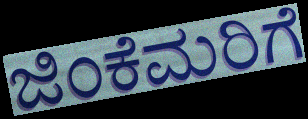
ಜಿಂಕೆಮರಿಗೆ